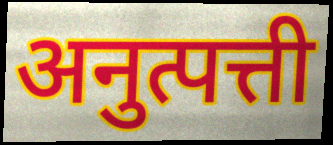
अनुत्पत्ती